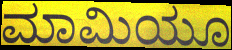
ಮಾಮಿಯೂ